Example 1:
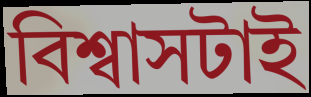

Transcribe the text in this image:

বিশ্বাসটাই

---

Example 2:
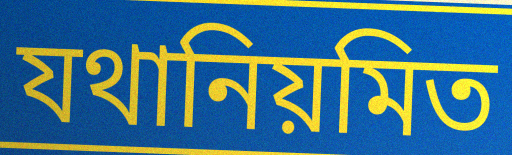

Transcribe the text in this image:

যথানিয়মিত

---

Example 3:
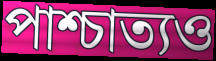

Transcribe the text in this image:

পাশ্চাত্যও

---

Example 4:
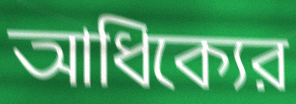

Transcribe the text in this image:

আধিক্যের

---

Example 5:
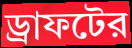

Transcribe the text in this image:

ড্রাফটের